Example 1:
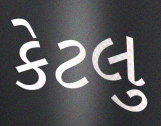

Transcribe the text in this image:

કેટલુ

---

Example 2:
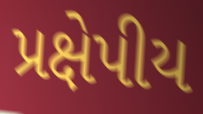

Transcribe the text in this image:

પ્રક્ષેપીય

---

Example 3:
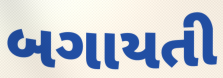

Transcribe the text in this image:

બગાયતી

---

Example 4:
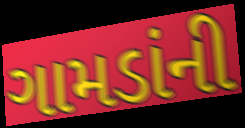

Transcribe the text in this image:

ગામડાંની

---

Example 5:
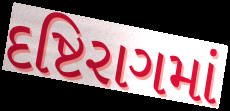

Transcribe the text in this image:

દષ્ટિરાગમાં